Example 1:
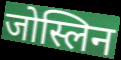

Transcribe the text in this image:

जोस्लिन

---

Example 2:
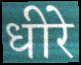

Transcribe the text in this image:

धीरे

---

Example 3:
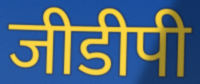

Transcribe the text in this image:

जीडीपी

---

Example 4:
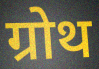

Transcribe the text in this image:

ग्रोथ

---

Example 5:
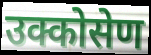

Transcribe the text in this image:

उक्कोसेण